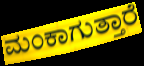
ಮಂಕಾಗುತ್ತಾರೆ